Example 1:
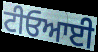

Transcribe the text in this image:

ਟੀਓਆਈ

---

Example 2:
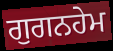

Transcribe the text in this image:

ਗੁਗਨਹੇਮ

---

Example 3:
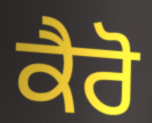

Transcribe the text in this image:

ਕੈਰੋ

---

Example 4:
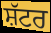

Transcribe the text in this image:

ਸ਼ੱਟਰ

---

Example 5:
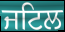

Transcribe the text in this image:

ਜਟਿਲ